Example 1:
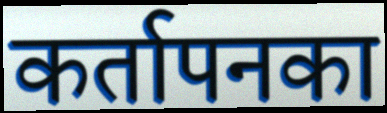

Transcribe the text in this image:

कर्तापनका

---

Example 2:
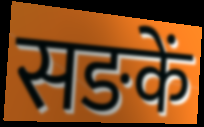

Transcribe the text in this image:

सङकें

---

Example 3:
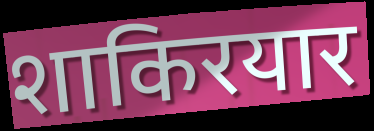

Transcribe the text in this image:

शाकिरयार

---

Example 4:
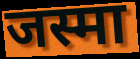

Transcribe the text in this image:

जस्मा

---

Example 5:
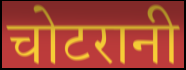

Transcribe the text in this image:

चोटरानी